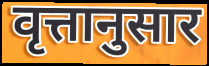
वृत्तानुसार